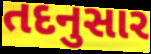
તદનુસાર